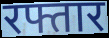
रफ्तार